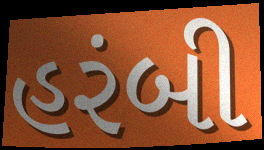
હરંબી